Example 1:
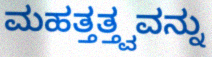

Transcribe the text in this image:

ಮಹತ್ತತ್ತ್ವವನ್ನು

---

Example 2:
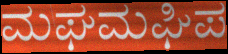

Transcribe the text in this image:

ಮಘಮಘಿಪ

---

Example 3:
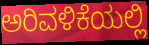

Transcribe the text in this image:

ಅರಿವಳಿಕೆಯಲ್ಲಿ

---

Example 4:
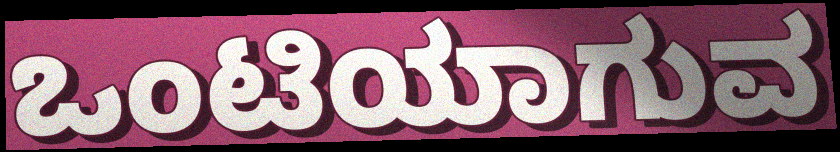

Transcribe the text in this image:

ಒಂಟಿಯಾಗುವ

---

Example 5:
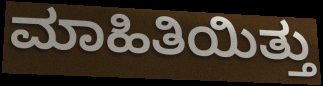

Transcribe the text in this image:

ಮಾಹಿತಿಯಿತ್ತು